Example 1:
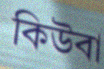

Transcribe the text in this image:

কিউবা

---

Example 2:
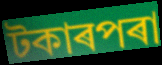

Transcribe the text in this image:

টকাৰপৰা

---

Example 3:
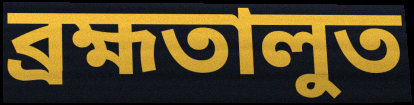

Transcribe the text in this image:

ব্ৰহ্মতালুত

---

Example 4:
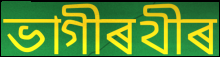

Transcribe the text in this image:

ভাগীৰথীৰ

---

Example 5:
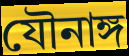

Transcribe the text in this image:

যৌনাঙ্গ